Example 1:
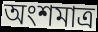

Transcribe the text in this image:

অংশমাত্র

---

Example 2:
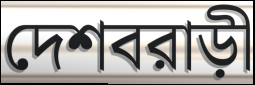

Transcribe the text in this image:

দেশবরাড়ী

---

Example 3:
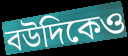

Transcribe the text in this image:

বউদিকেও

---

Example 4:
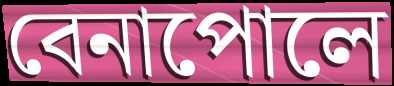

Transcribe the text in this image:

বেনাপোলে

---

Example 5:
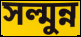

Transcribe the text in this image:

সল্মুন্ন